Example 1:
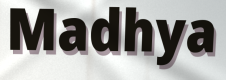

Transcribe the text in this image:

Madhya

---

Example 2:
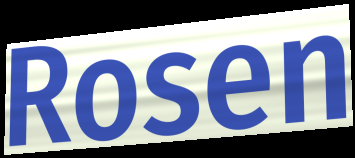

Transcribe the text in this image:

Rosen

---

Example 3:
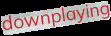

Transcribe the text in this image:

downplaying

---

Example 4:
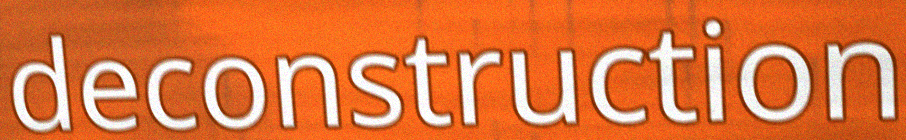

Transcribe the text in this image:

deconstruction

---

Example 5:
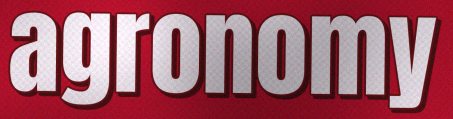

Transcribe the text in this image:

agronomy